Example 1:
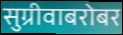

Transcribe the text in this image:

सुग्रीवाबरोबर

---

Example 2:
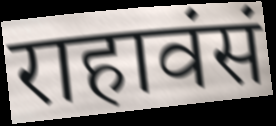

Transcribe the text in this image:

राहावंसं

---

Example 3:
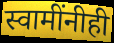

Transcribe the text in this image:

स्वामींनीही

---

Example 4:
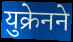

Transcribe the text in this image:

युक्रेनने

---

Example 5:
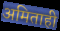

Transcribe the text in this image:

अमिताही